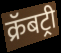
क्रॅबट्री